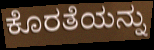
ಕೊರತೆಯನ್ನು